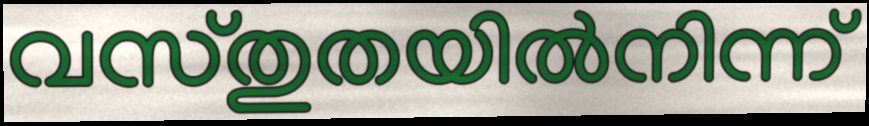
വസ്തുതയിൽനിന്ന്